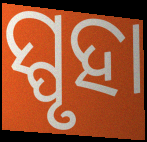
ସ୍ପୃହା